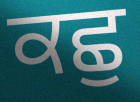
ਕਛੁ